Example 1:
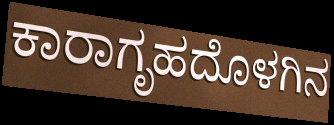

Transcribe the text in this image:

ಕಾರಾಗೃಹದೊಳಗಿನ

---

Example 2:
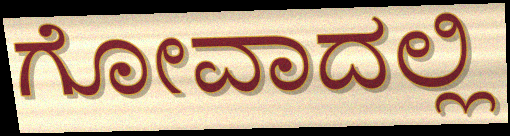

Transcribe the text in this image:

ಗೋವಾದಲ್ಲಿ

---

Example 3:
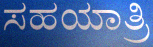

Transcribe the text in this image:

ಸಹಯಾತ್ರಿ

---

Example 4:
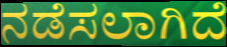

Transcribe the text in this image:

ನಡೆಸಲಾಗಿದೆ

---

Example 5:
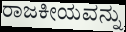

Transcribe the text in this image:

ರಾಜಕೀಯವನ್ನು